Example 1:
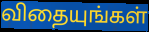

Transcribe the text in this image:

விதையுங்கள்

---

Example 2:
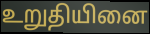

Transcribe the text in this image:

உறுதியினை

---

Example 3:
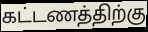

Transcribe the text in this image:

கட்டணத்திற்கு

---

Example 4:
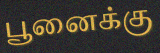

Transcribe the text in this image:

பூனைக்கு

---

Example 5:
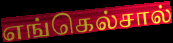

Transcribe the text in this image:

எங்கெல்சால்